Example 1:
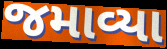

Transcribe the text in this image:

જમાવ્યા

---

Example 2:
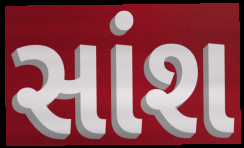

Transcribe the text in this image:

સાંશ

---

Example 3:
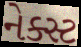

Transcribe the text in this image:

નેક્સ્ટ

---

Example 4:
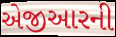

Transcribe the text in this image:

એજીઆરની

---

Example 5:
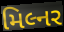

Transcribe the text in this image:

મિલ્નર